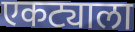
एकट्याला